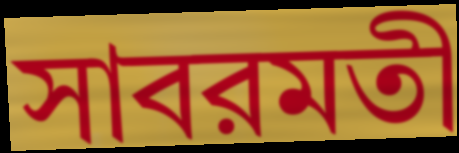
সাবরমতী